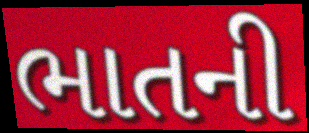
ભાતની